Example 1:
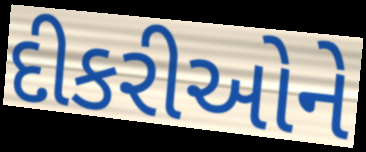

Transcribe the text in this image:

દીકરીઓને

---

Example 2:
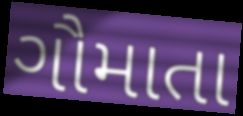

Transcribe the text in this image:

ગૌમાતા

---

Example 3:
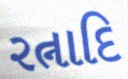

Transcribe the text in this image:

રત્નાદિ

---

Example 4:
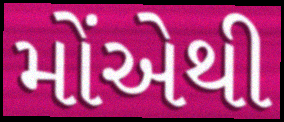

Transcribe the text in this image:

મોંએથી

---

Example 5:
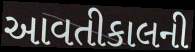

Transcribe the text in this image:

આવતીકાલની